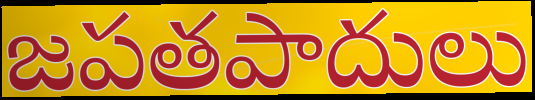
జపతపాదులు